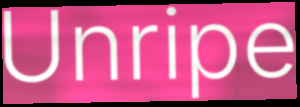
Unripe